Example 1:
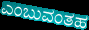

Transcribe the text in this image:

ಎಂಬುವಂತಹ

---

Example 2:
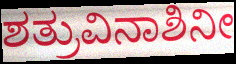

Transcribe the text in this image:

ಶತ್ರುವಿನಾಶಿನೀ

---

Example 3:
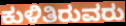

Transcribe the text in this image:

ಕುಳಿತಿರುವರು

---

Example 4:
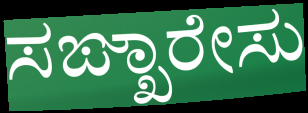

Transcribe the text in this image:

ಸಙ್ಖಾರೇಸು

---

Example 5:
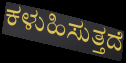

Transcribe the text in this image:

ಕಳುಹಿಸುತ್ತದೆ